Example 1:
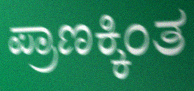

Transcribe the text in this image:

ಪ್ರಾಣಕ್ಕಿಂತ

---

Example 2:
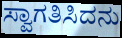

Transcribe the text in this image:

ಸ್ವಾಗತಿಸಿದನು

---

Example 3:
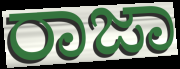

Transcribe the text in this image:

ರಾಜಾ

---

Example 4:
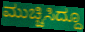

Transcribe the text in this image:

ಮುಚ್ಚಿಸಿದ್ದೂ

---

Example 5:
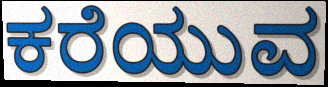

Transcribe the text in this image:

ಕರೆಯುವ